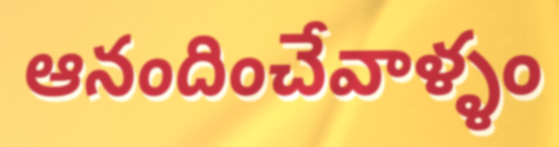
ఆనందించేవాళ్ళం